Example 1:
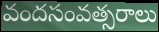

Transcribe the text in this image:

వందసంవత్సరాలు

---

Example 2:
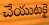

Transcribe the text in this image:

చేయుటకై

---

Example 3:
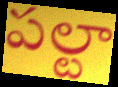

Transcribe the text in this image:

పల్టా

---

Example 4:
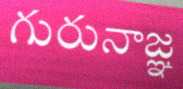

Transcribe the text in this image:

గురునాజ్ఞ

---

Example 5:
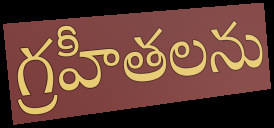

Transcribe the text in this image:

గ్రహీతలను